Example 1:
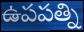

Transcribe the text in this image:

ఉపపత్ని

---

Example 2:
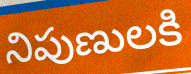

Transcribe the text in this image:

నిపుణులకి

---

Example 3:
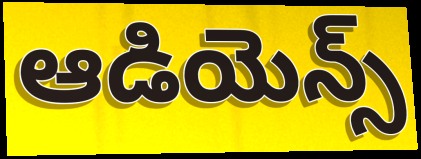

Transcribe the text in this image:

ఆడియెన్స్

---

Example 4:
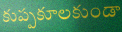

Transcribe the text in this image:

కుప్పకూలకుండా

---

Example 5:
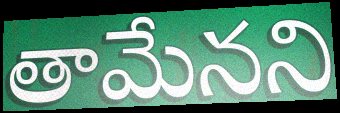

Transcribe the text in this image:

తామేనని